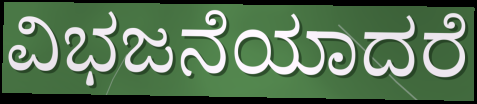
ವಿಭಜನೆಯಾದರೆ